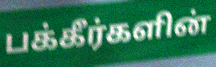
பக்கீர்களின்